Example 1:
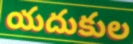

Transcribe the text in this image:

యదుకుల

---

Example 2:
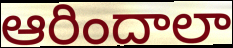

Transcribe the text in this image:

ఆరిందాలా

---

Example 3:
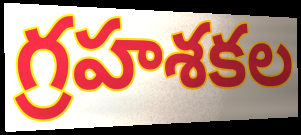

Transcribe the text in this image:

గ్రహశకల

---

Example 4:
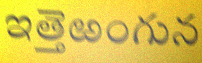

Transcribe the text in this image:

ఇత్తెఱంగున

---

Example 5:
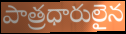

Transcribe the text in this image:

పాత్రధారులైన